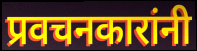
प्रवचनकारांनी